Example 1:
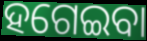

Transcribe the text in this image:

ହଗେଇବା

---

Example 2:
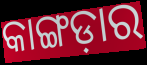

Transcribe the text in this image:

କାଙ୍ଗଡ଼ାର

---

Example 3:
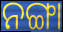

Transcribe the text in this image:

ନଙ୍ଗା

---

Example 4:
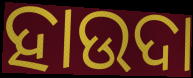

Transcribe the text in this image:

ହାଉଦା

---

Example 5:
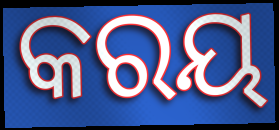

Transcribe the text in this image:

କରୟ